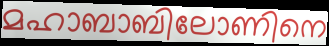
മഹാബാബിലോണിനെ